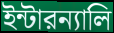
ইন্টারন্যালি